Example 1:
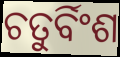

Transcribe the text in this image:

ଚତୁର୍ବିଂଶ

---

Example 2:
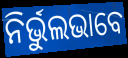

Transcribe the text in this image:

ନିର୍ଭୁଲଭାବେ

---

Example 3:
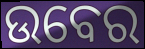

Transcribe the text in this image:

ଉବେର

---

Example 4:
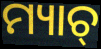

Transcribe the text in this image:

ମ୍ୟାଚ୍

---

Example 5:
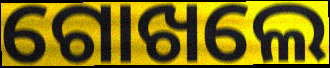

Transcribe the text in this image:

ଗୋଖଲେ